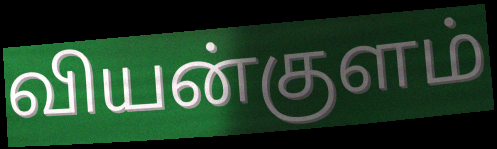
வியன்குளம்